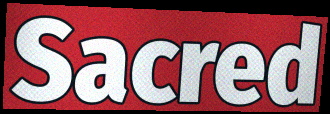
Sacred